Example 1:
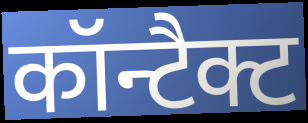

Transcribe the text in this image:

कॉन्टैक्ट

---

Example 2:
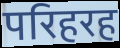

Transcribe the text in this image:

परिहरह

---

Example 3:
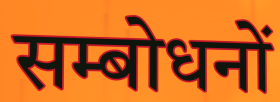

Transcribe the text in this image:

सम्बोधनों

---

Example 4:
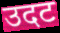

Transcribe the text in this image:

उदट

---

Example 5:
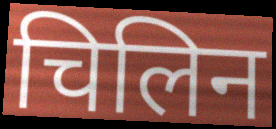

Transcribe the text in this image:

चिलिन